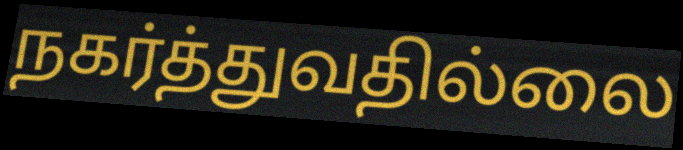
நகர்த்துவதில்லை